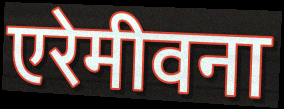
एरेमीवना